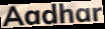
Aadhar